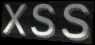
xss